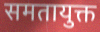
समतायुक्त